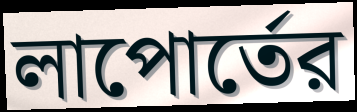
লাপোর্তের